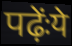
पढ़ेंःये